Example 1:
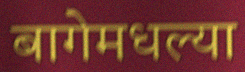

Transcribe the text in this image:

बागेमधल्या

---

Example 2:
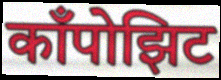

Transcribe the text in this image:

काँपोझिट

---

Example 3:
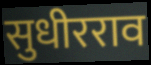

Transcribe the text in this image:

सुधीरराव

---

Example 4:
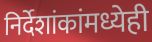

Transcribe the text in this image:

निर्देशांकांमध्येही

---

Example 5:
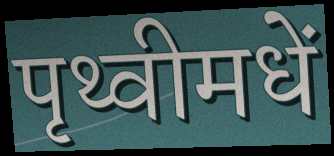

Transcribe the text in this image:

पृथ्वीमधें